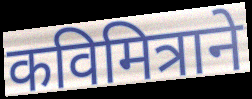
कविमित्राने